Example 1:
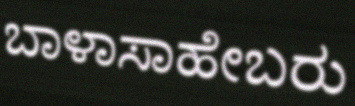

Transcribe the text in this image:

ಬಾಳಾಸಾಹೇಬರು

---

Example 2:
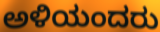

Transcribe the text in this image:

ಅಳಿಯಂದರು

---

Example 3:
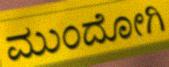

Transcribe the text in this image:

ಮುಂದೋಗಿ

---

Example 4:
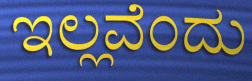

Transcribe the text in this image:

ಇಲ್ಲವೆಂದು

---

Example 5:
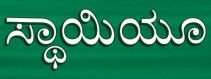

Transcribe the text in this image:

ಸ್ಥಾಯಿಯೂ